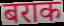
बराक